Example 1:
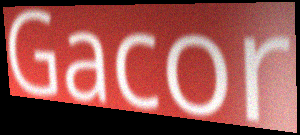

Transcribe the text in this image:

Gacor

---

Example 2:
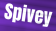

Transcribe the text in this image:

Spivey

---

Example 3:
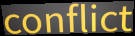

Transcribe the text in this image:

conflict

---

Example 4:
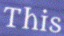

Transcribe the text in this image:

This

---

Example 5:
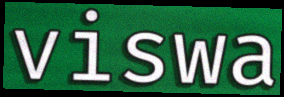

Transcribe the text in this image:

viswa